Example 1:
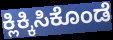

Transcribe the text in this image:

ಕ್ಲಿಕ್ಕಿಸಿಕೊಂಡೆ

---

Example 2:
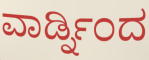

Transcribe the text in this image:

ವಾರ್ಡ್ನಿಂದ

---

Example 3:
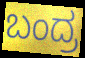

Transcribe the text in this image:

ಬಂದ್ರ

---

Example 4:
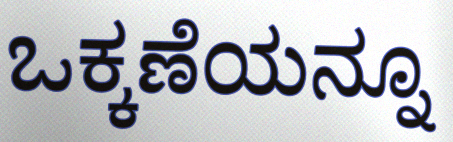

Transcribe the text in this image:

ಒಕ್ಕಣೆಯನ್ನೂ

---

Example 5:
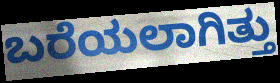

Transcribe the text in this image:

ಬರೆಯಲಾಗಿತ್ತು